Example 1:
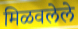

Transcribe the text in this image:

मिळवलेले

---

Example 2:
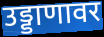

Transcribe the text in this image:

उड्डाणावर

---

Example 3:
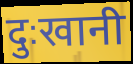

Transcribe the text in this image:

दुःखानी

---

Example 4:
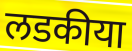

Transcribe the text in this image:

लडकीया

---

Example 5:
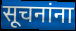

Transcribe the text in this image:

सूचनांना